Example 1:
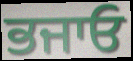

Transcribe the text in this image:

ਭਜਾਓ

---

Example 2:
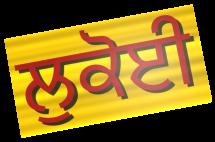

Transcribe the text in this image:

ਲੁਕੋਈ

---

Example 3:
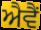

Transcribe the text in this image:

ਐਵੈਂ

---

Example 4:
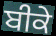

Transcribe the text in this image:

ਬੀਕੇ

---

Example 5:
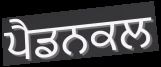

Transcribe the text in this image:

ਪੈਡਨਕਲ